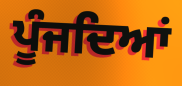
ਪੂੰਜਦਿਆਂ